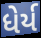
ધેર્ય